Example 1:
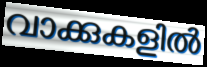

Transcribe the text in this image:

വാക്കുകളിൽ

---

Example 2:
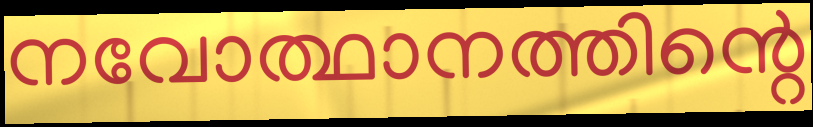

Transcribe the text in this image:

നവോത്ഥാനത്തിന്റെ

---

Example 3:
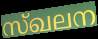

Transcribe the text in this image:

സ്ഖലന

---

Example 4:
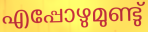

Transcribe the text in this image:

എപ്പോഴുമുണ്ടു്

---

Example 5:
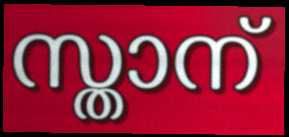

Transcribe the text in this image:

സ്താന്